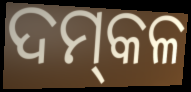
ଦମ୍‌କଳ